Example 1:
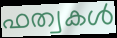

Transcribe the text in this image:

ഫത്വകൾ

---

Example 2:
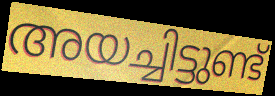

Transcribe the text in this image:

അയച്ചിട്ടുണ്ട്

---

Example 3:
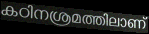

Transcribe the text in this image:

കഠിനശ്രമത്തിലാണ്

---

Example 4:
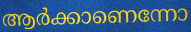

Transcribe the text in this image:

ആർക്കാണെന്നോ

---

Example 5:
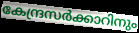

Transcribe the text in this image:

കേന്ദ്രസർക്കാറിനും